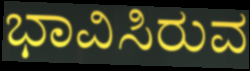
ಭಾವಿಸಿರುವ